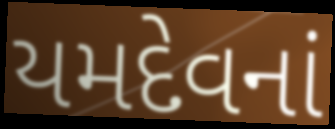
યમદેવનાં